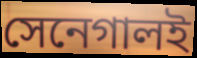
সেনেগালই